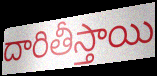
దారితీస్తాయి